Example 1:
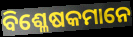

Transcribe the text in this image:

ବିଶ୍ଳେଷକମାନେ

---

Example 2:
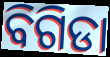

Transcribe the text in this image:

ବିଗିଡା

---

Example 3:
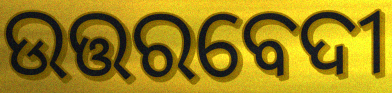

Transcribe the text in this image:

ଉତ୍ତରବେଦୀ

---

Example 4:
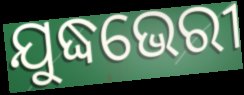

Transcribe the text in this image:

ଯୁଦ୍ଧଭେରୀ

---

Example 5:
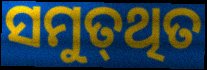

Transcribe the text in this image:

ସମୁତ୍‌ଥିତ